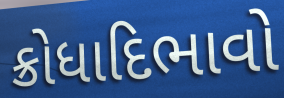
ક્રોધાદિભાવો